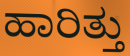
ಹಾರಿತ್ತು